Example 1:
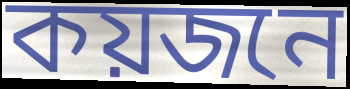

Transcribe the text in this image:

কয়জনে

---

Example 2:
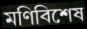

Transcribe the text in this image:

মণিবিশেষ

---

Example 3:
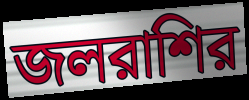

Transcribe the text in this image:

জলরাশির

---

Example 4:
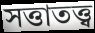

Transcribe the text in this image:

সত্তাতত্ত্ব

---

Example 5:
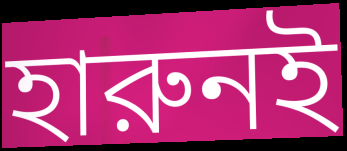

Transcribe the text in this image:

হারুনই